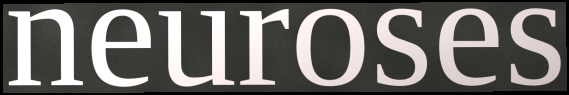
neuroses